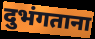
दुभंगताना